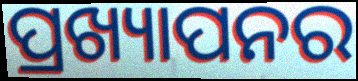
ପ୍ରଖ୍ୟାପନର